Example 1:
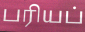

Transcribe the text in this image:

பரியப்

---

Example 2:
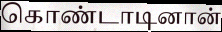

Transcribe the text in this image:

கொண்டாடினான்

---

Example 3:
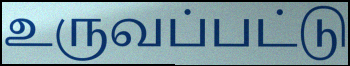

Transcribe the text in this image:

உருவப்பட்டு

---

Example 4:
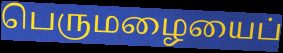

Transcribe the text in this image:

பெருமழையைப்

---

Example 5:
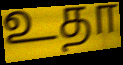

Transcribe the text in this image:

உதா